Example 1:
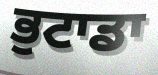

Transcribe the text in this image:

ਭੁਟਾਡਾ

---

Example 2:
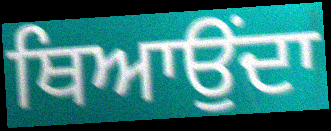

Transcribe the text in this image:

ਥਿਆਉਂਦਾ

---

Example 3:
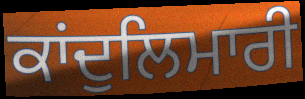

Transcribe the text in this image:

ਕਾਂਦੁਲਿਮਾਰੀ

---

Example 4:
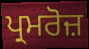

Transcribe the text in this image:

ਪ੍ਰਮਰੋਜ਼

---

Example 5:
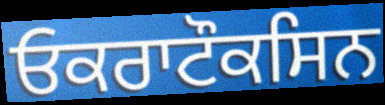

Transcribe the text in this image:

ਓਕਰਾਟੌਕਸਿਨ